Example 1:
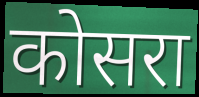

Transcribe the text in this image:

कोसरा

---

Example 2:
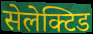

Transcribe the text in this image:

सेलेक्टिड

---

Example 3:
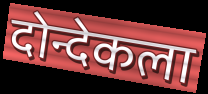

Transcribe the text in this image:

दोन्देकला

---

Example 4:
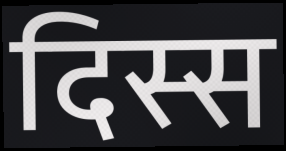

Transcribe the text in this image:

दिस्स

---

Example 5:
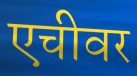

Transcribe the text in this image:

एचीवर